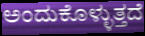
ಅಂದುಕೊಳ್ಳುತ್ತದೆ